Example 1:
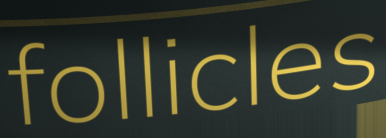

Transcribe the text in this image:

follicles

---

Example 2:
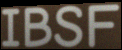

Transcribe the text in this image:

IBSF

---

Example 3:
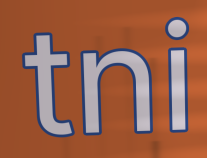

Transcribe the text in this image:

tni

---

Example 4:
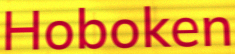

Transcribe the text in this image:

Hoboken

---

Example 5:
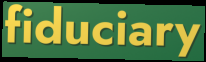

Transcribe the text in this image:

fiduciary